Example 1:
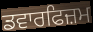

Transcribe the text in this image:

ਡਵਾਰਫਿਜ਼ਮ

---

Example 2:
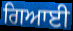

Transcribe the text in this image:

ਗਿਆਈ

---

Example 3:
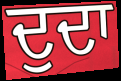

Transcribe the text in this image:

ਦੁਦਾ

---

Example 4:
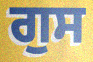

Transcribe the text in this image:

ਗੁਸ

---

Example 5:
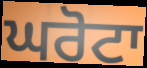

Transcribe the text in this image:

ਘਰੋਟਾ